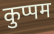
कुप्पम